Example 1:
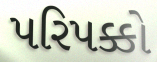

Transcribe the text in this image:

પરિપક્કો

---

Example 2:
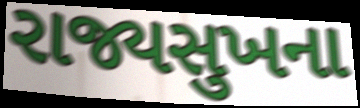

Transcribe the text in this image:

રાજ્યસુખના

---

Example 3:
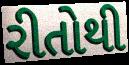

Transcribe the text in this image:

રીતોથી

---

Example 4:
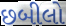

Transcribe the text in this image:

છબીલો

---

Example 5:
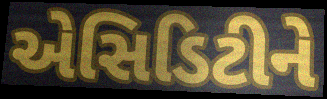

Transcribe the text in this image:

એસિડિટીને